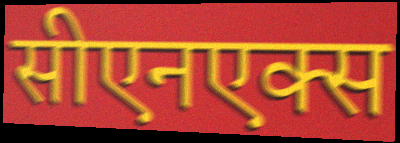
सीएनएक्स